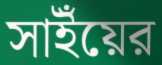
সাইঁয়ের